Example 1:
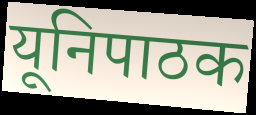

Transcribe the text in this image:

यूनिपाठक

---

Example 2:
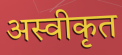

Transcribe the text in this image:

अस्‍वीकृत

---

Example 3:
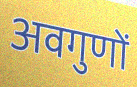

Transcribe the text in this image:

अवगुणों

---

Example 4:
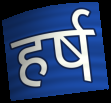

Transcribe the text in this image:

हर्ष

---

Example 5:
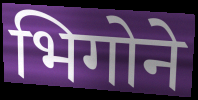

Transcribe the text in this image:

भिगोने